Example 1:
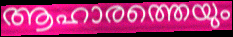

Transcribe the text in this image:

ആഹാരത്തെയും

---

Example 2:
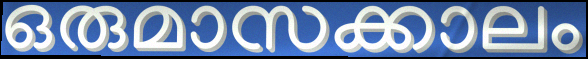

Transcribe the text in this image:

ഒരുമാസക്കാലം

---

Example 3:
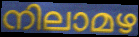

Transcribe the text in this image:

നിലാമഴ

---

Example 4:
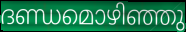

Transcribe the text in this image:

ദണ്ഡമൊഴിഞ്ഞു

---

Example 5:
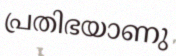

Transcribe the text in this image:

പ്രതിഭയാണു